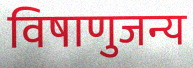
विषाणुजन्य